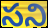
సని